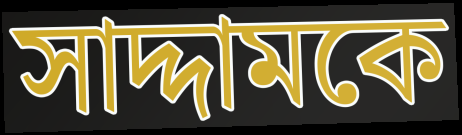
সাদ্দামকে